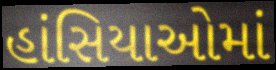
હાંસિયાઓમાં